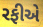
રફીએ